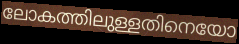
ലോകത്തിലുള്ളതിനെയോ